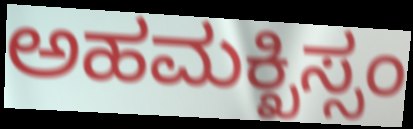
ಅಹಮಕ್ಖಿಸ್ಸಂ